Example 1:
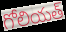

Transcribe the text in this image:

గోలియత్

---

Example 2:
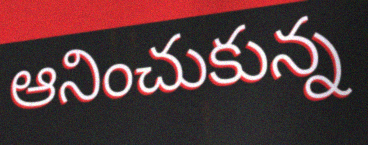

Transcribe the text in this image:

ఆనించుకున్న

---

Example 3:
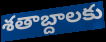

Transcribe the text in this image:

శతాబ్దాలకు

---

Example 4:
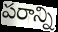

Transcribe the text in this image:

పరాన్ని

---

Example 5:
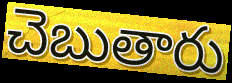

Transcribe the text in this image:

చెబుతారు